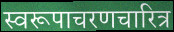
स्वरूपाचरणचारित्र